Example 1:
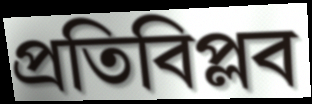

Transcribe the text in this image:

প্রতিবিপ্লব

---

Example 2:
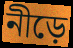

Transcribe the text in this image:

নীড়ে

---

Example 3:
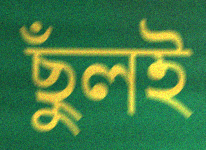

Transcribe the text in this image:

ছুঁলই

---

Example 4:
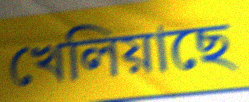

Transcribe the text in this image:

খেলিয়াছে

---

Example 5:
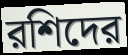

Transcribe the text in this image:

রশিদের